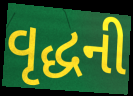
વૃદ્ધની